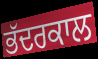
ਭੱਦਰਕਾਲ